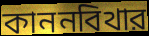
কাননবিথার